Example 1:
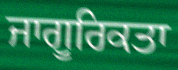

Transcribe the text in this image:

ਜਾਗੂਰਿਕਤਾ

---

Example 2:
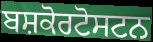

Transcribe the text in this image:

ਬਸ਼ਕੋਰਟੋਸਟਨ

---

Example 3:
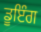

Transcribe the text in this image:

ਡੂਇੰਗ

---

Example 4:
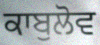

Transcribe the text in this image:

ਕਾਬੁਲੋਵ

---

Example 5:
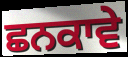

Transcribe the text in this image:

ਛਨਕਾਵੇ